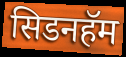
सिडनहॅम